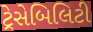
ટ્રેસેબિલિટી